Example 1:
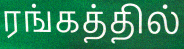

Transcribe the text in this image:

ரங்கத்தில்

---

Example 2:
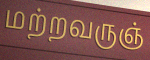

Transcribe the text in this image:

மற்றவருஞ்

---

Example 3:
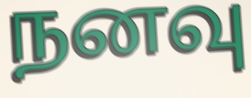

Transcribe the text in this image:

நனவு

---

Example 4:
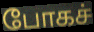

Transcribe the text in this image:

போகச்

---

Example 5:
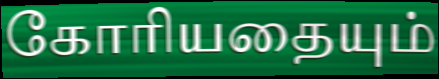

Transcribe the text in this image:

கோரியதையும்